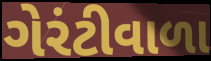
ગેરંટીવાળા